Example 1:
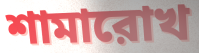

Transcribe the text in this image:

শামারোখ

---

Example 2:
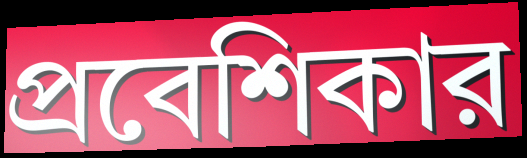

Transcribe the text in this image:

প্রবেশিকার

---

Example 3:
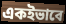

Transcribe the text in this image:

একইভাবে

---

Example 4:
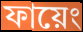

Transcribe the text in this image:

ফায়েং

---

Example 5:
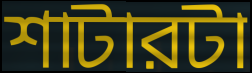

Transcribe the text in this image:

শাটারটা